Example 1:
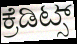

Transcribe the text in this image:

ಕ್ರೆಡಿಟ್ಸ್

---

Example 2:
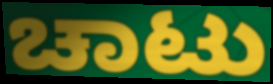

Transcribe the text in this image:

ಚಾಟು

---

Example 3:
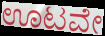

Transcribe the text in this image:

ಊಟವೇ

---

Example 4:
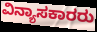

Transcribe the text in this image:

ವಿನ್ಯಾಸಕಾರರು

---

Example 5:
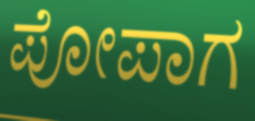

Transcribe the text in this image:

ಪೋಪಾಗ